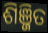
ଶିଞ୍ଜିତ